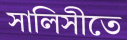
সালিসীতে